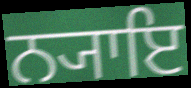
ਨ੍ਯਾਇ